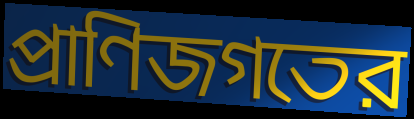
প্রাণিজগতের